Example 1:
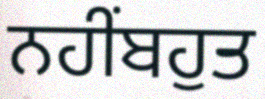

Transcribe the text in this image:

ਨਹੀਂਬਹੁਤ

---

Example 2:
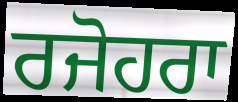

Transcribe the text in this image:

ਰਜੋਹਰਾ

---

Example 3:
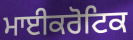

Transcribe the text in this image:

ਮਾਈਕਰੋਟਿਕ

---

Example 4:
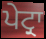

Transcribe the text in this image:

ਪੇਟ੍ਰਾ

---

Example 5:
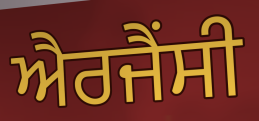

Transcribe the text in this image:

ਐਰਜੈਂਸੀ